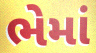
ભેમાં